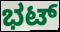
ಭಟ್